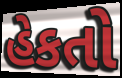
હેકતો